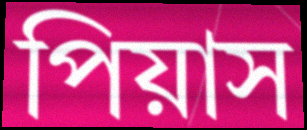
পিয়াস